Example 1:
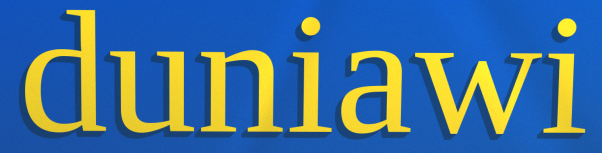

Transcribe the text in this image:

duniawi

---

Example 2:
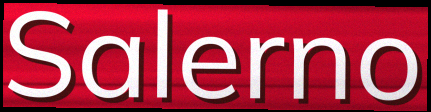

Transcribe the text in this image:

Salerno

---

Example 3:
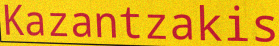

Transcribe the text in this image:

Kazantzakis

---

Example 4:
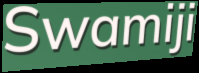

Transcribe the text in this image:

Swamiji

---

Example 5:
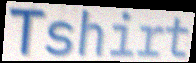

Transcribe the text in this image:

Tshirt